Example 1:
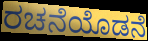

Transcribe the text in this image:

ರಚನೆಯೊಡನೆ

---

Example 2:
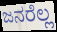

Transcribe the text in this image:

ಜನರೆಲ್ಲ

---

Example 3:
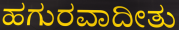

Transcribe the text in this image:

ಹಗುರವಾದೀತು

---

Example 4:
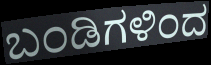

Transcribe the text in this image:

ಬಂಡಿಗಳಿಂದ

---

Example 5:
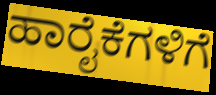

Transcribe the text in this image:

ಹಾರೈಕೆಗಳಿಗೆ